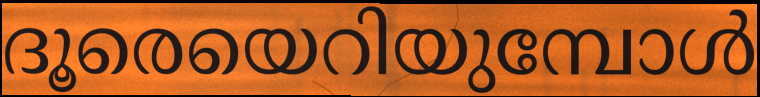
ദൂരെയെറിയുമ്പോൾ